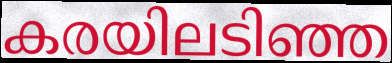
കരയിലടിഞ്ഞ